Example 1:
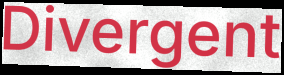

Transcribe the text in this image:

Divergent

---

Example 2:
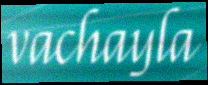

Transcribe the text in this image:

vachayla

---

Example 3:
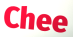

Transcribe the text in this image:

Chee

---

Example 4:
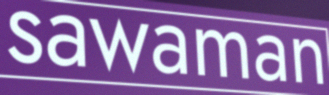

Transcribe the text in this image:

sawaman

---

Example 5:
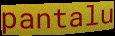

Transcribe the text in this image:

pantalu